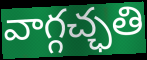
వాగ్గచ్ఛతి